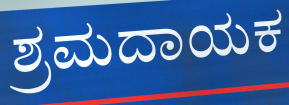
ಶ್ರಮದಾಯಕ